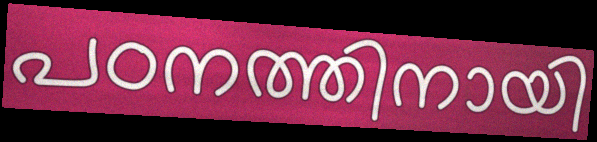
പഠനത്തിനായി